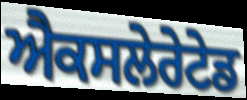
ਐਕਸਲੇਰੇਟੇਡ